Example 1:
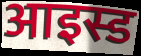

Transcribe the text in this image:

आइस्ड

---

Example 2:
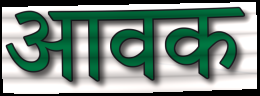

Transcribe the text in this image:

आवक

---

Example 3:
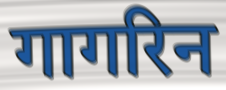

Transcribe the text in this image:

गागरिन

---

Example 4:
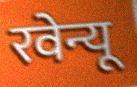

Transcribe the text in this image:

रवेन्यू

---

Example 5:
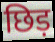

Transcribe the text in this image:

छिड़